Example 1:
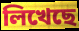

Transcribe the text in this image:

লিখেছে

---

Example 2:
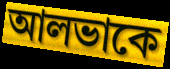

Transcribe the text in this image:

আলভাকে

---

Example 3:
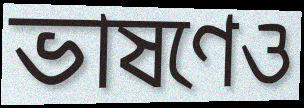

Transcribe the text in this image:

ভাষণেও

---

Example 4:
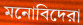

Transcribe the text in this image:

মনোবিদেরা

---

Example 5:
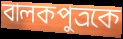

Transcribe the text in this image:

বালকপুত্রকে